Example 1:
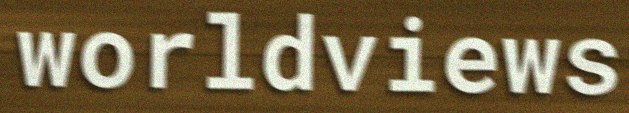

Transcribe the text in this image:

worldviews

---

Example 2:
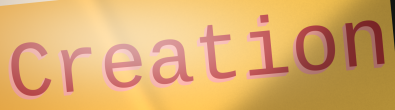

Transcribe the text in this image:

Creation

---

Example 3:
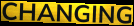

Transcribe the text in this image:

CHANGING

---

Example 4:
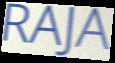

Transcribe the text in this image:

RAJA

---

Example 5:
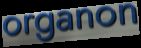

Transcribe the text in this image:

organon